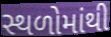
સ્થળોમાંથી